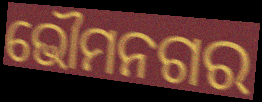
ଭୌମନଗର